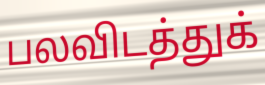
பலவிடத்துக்